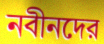
নবীনদের